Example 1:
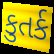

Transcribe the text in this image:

કુતર્ક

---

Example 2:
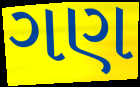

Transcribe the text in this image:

ગણ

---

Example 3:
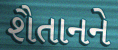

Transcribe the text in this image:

શૈતાનને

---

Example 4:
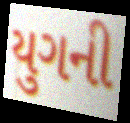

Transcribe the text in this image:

યુગની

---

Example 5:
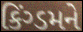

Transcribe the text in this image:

કિંગ્ડમને